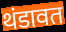
थंडावत